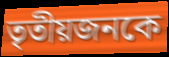
তৃতীয়জনকে